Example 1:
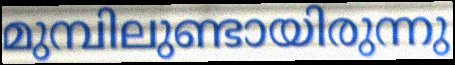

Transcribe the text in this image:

മുമ്പിലുണ്ടായിരുന്നു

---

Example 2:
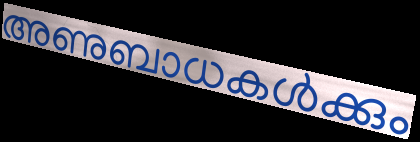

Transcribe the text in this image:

അണുബാധകൾക്കും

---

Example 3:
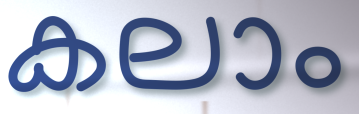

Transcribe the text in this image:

കലാം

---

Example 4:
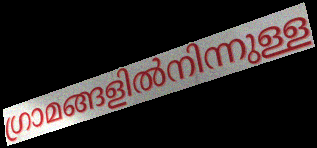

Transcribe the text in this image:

ഗ്രാമങ്ങളിൽനിന്നുള്ള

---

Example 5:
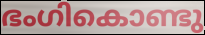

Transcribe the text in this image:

ഭംഗികൊണ്ടു